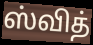
ஸ்வித்